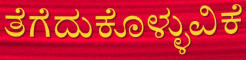
ತೆಗೆದುಕೊಳ್ಳುವಿಕೆ